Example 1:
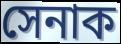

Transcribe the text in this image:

সেনাক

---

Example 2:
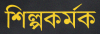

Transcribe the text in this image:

শিল্পকৰ্মক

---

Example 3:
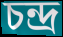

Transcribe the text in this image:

চন্দ্ৰ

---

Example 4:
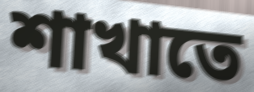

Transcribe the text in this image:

শাখাতে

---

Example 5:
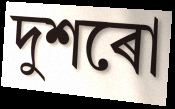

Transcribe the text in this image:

দুশৰো